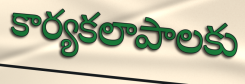
కార్యకలాపాలకు